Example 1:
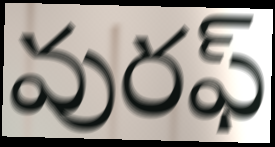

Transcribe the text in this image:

వురఫ్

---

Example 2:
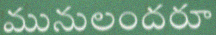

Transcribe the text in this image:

మునులందరూ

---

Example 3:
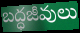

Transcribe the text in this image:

బద్ధజీవులు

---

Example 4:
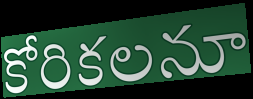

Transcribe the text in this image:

కోరికలనూ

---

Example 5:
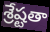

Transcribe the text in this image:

శ్రేష్టతా